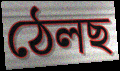
ঠেলছ